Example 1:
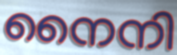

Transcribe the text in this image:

നൈനി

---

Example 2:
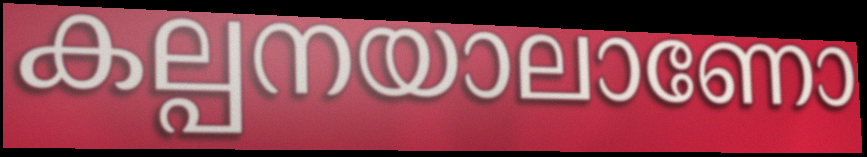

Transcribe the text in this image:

കല്പനയാലാണോ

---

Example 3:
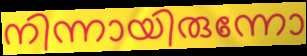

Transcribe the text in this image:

നിന്നായിരുന്നോ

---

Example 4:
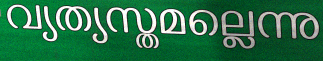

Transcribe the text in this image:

വ്യത്യസ്തമല്ലെന്നു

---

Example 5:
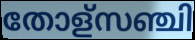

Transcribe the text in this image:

തോള്സഞ്ചി